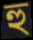
হু